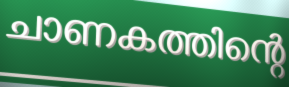
ചാണകത്തിന്റെ